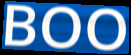
BOO